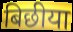
बिछीया